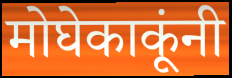
मोघेकाकूंनी